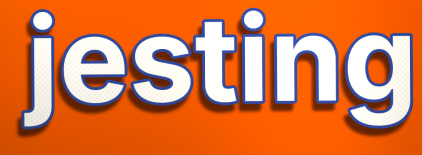
jesting